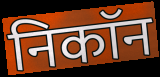
निकॉन